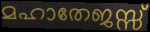
മഹാതേജസ്സ്